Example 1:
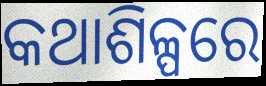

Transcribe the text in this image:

କଥାଶିଳ୍ପରେ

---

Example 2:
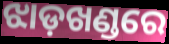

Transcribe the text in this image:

ଝାଡ଼ଖଣ୍ଡରେ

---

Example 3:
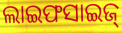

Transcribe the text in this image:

ଲାଇଫସାଇଜ୍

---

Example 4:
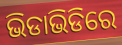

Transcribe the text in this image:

ଭିଡାଭିଡିରେ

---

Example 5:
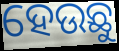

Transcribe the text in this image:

ହେଉଛୁ